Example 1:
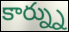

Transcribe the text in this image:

కార్న్ను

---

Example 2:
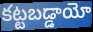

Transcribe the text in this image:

కట్టబడ్డాయో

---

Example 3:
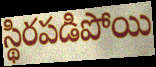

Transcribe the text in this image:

స్థిరపడిపోయి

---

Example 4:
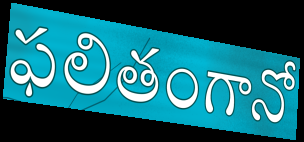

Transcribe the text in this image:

ఫలితంగానో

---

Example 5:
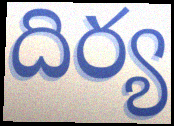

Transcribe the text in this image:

దిర్య